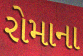
રોમાના